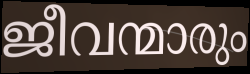
ജീവന്മാരും